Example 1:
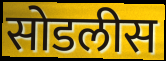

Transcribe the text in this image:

सोडलीस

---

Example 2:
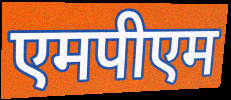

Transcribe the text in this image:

एमपीएम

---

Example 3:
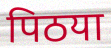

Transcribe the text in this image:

पिठया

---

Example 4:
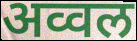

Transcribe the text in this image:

अव्वल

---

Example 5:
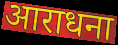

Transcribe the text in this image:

आराधना